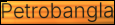
Petrobangla